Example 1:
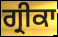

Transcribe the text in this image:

ਗ੍ਰੀਕਾ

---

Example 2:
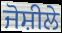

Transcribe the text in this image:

ਜੋਸ਼ੀਲੇ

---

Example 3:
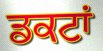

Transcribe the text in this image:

ਡਕਟਾਂ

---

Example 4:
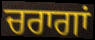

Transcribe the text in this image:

ਚਰਾਗਾਂ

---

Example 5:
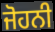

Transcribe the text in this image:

ਜੋਹਨੀ